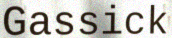
Gassick